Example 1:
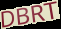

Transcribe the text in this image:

DBRT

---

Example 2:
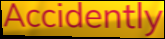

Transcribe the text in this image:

Accidently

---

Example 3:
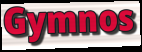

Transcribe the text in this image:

Gymnos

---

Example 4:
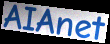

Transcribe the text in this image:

AIAnet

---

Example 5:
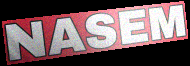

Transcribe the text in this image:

NASEM